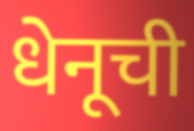
धेनूची